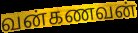
வன்கணவன்